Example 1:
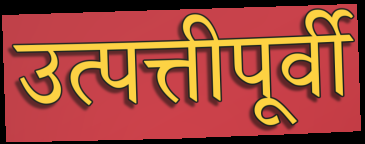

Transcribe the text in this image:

उत्पत्तीपूर्वी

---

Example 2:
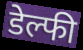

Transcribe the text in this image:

डेल्फी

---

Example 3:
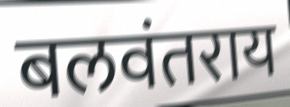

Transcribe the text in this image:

बलवंतराय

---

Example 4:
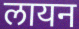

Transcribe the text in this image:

लायन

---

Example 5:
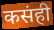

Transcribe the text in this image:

कसंही